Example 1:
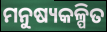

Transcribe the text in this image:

ମନୁଷ୍ୟକଳ୍ପିତ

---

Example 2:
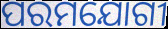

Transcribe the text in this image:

ପରମଯୋଗୀ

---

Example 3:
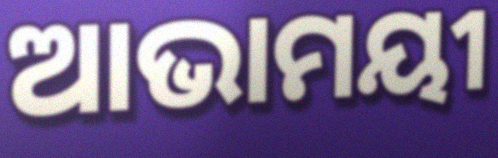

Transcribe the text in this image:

ଆଭାମୟୀ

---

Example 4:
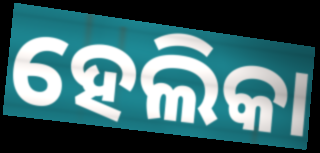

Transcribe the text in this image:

ହେଲିକା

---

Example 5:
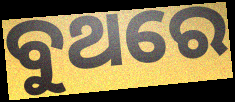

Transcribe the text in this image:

ବୁଥରେ